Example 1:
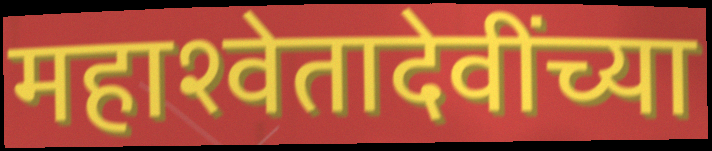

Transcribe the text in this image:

महाश्वेतादेवींच्या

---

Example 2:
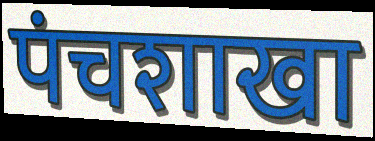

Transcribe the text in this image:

पंचशाखा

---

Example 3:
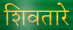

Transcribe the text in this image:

शिवतारे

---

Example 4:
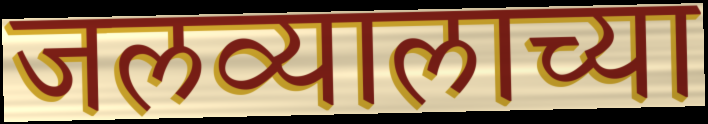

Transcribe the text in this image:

जलव्यालाच्या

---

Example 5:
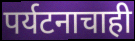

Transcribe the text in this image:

पर्यटनाचाही